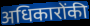
अधिकारोंकी